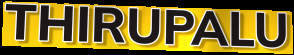
THIRUPALU